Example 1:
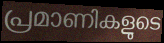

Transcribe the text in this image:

പ്രമാണികളുടെ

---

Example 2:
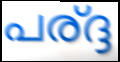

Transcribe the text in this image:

പര്ദ്ദ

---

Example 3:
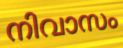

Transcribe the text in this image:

നിവാസം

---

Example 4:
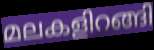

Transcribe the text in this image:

മലകളിറങ്ങി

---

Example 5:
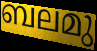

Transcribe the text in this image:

ബലമു